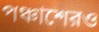
পঞ্চাশেরও